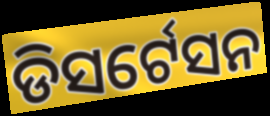
ଡିସର୍ଟେସନ